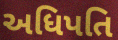
અધિપતિ